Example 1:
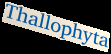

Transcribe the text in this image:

Thallophyta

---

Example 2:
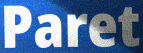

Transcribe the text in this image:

Paret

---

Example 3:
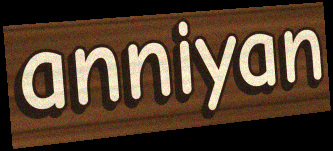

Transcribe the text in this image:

anniyan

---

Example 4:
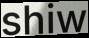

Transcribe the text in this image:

shiw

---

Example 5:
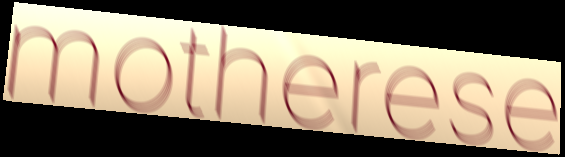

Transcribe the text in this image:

motherese